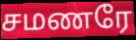
சமணரே